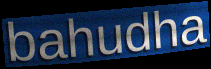
bahudha